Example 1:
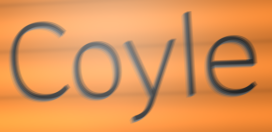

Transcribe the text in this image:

Coyle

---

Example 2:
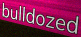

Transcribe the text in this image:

bulldozed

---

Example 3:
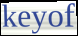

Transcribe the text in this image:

keyof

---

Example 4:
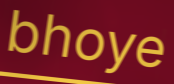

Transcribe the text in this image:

bhoye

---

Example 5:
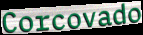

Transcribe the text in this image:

Corcovado